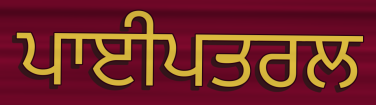
ਪਾਈਪਤਰਲ